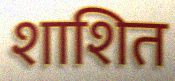
शाशित